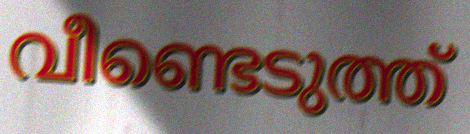
വീണ്ടെടുത്ത്